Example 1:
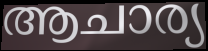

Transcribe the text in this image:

ആചാര്യ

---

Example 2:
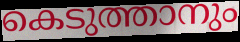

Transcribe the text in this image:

കെടുത്താനും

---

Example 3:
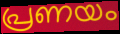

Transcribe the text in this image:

പ്രണയം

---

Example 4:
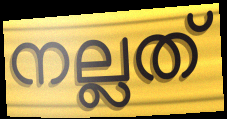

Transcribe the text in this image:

നല്ലത്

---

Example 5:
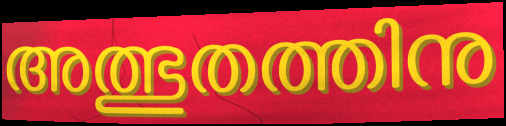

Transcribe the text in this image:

അത്ഭുതത്തിനു